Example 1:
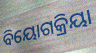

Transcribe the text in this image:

ବିୟୋଗକ୍ରିୟା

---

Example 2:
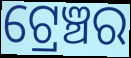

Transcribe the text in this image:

ଟ୍ରେଞ୍ଚର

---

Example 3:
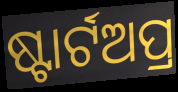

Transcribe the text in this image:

ଷ୍ଟାର୍ଟଅପ୍ର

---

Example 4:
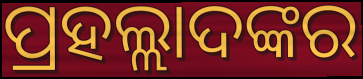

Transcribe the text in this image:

ପ୍ରହଲ୍ଲାଦଙ୍କର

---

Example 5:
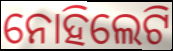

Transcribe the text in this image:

ନୋହିଲେଟି